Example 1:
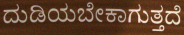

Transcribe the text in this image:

ದುಡಿಯಬೇಕಾಗುತ್ತದೆ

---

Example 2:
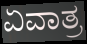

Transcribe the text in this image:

ಏವಾತ್ರ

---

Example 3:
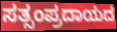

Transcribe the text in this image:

ಸತ್ಸಂಪ್ರದಾಯದ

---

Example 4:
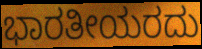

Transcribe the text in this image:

ಭಾರತೀಯರದು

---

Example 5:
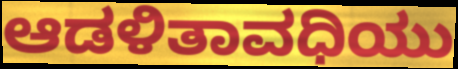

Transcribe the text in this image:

ಆಡಳಿತಾವಧಿಯು